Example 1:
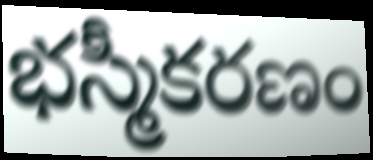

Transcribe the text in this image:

భస్మీకరణం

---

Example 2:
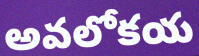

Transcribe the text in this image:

అవలోకయ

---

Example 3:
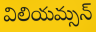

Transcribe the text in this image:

విలియమ్సన్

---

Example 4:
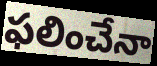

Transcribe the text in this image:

ఫలించేనా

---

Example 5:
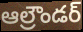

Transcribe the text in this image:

ఆల్రౌండర్